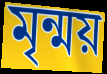
মৃন্ময়